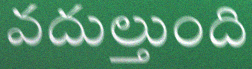
వదుల్తుంది